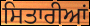
ਸਿਤਾਰੀਆਂ